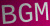
BGM